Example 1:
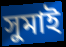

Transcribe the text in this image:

সুমাই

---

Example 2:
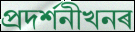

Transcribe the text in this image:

প্ৰদৰ্শনীখনৰ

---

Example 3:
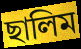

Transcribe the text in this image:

ছালিম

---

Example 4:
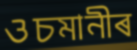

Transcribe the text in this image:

ওচমানীৰ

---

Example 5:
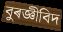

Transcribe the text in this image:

বুৰজ্ঞীবিদ